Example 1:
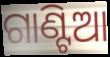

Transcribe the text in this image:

ଗାଣ୍ଟିଆ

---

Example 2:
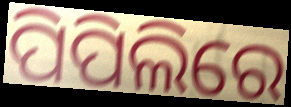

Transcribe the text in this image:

ପିପିଲିରେ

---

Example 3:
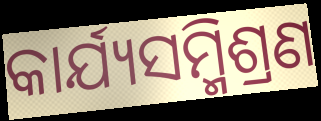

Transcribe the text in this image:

କାର୍ଯ୍ୟସମ୍ମିଶ୍ରଣ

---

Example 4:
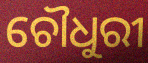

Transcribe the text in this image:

ଚୌଧୁରୀ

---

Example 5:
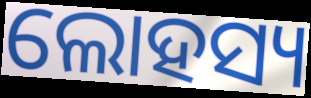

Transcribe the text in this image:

ଲୋହସ୍ୟ